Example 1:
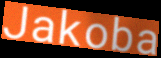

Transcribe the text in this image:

Jakoba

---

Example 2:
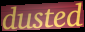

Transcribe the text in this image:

dusted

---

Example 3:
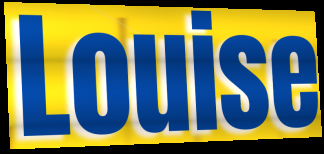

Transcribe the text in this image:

Louise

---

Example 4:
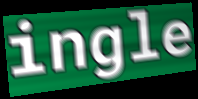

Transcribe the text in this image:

ingle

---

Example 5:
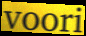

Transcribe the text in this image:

voori